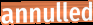
annulled